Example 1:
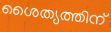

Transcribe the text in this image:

ശൈത്യത്തിന്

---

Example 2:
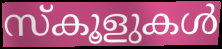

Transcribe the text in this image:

സ്കൂളുകൾ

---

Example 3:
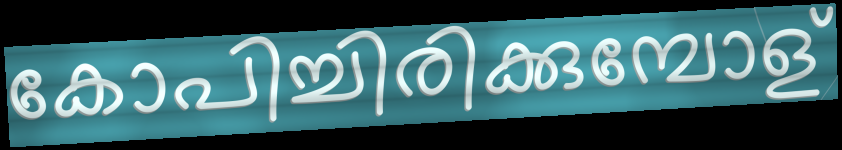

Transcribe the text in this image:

കോപിച്ചിരിക്കുമ്പോള്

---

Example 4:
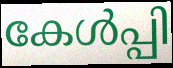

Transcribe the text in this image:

കേൾപ്പി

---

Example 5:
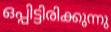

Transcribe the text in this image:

ഒപ്പിട്ടിരിക്കുന്നു